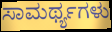
ಸಾಮರ್ಥ್ಯಗಳು